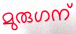
മുരുഗന്